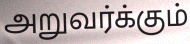
அறுவர்க்கும்